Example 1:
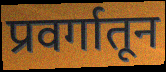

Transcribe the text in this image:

प्रवर्गातून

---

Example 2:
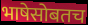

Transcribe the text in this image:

भाषेसोबतच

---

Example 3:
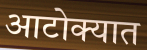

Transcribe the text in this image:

आटोक्‍यात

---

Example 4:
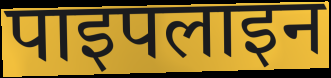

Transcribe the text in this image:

पाइपलाइन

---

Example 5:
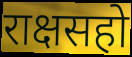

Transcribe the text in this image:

राक्षसहो